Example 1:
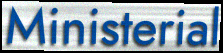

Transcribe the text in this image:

Ministerial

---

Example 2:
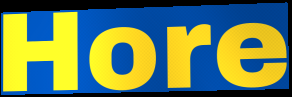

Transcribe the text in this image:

Hore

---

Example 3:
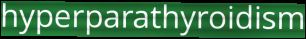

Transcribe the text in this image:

hyperparathyroidism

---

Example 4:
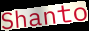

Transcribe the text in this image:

Shanto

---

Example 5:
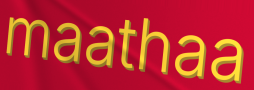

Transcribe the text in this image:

maathaa